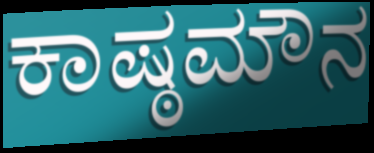
ಕಾಷ್ಠಮೌನ